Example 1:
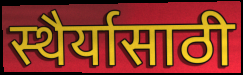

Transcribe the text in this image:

स्थैर्यासाठी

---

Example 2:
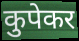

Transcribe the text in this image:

कुपेकर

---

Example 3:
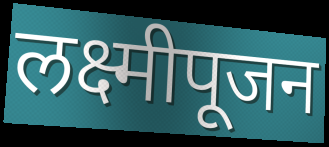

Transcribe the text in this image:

लक्ष्मीपूजन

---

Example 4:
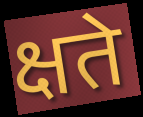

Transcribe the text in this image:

क्षते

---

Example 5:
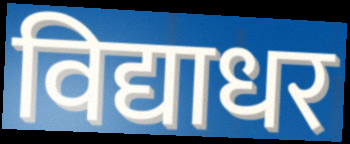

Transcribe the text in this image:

विद्याधर